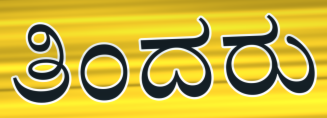
ತಿಂದರು